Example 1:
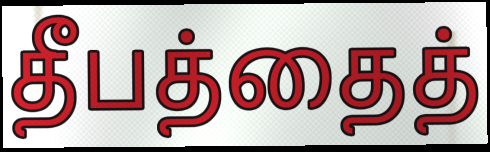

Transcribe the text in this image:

தீபத்தைத்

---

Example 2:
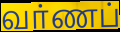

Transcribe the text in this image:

வர்ணப்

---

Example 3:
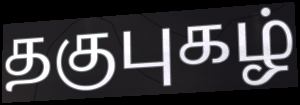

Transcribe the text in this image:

தகுபுகழ்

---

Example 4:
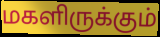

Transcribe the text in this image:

மகளிருக்கும்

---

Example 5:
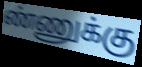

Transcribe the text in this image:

ண்ணுக்கு